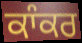
ਕਾੰਕਰ